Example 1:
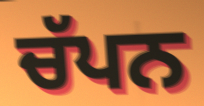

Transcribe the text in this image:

ਚੱਪਨ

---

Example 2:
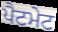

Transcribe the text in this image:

ਪੈਟਮੇਟ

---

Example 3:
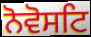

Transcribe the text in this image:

ਨੋਵੋਸਟਿ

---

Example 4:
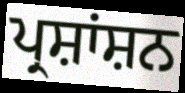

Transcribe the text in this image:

ਪ੍ਰਸ਼ਾਂਸ਼ਨ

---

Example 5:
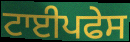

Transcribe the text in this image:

ਟਾਈਪਫੇਸ